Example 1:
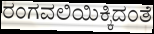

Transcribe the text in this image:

ರಂಗವಲಿಯಿಕ್ಕಿದಂತೆ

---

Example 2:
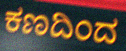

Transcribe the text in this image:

ಕಣದಿಂದ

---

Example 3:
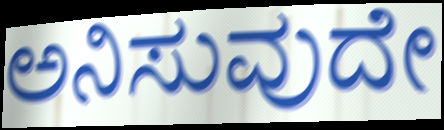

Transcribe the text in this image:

ಅನಿಸುವುದೇ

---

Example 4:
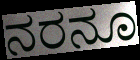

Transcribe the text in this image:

ನರನೂ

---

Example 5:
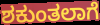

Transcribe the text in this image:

ಶಕುಂತಲಾಗೆ